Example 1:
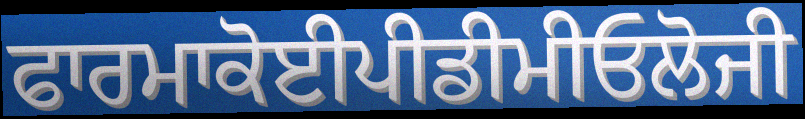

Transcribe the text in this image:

ਫਾਰਮਾਕੋਈਪੀਡੀਮੀਓਲੋਜੀ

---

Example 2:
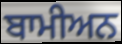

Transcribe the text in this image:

ਬਾਮੀਅਨ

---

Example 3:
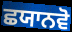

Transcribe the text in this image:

ਛਯਾਨਵੋ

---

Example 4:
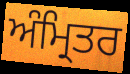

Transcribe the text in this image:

ਅੰਮ੍ਰਿਤਰ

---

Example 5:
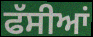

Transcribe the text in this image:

ਫੱਸੀਆਂ